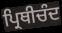
ਪ੍ਰਿਥੀਚੰਦ